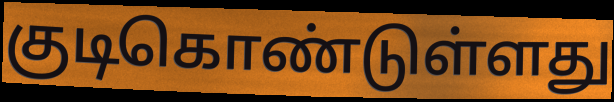
குடிகொண்டுள்ளது